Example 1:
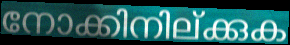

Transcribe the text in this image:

നോക്കിനില്ക്കുക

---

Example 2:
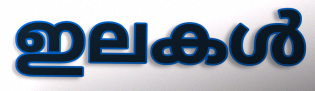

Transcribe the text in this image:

ഇലകൾ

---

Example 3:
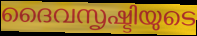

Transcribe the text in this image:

ദൈവസൃഷ്ടിയുടെ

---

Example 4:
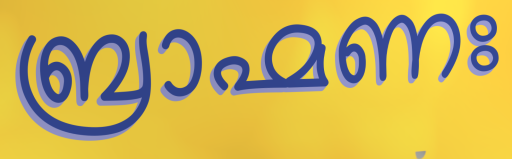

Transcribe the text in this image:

ബ്രാഹ്മണഃ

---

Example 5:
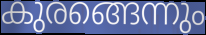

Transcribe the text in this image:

കുരങ്ങെന്നും